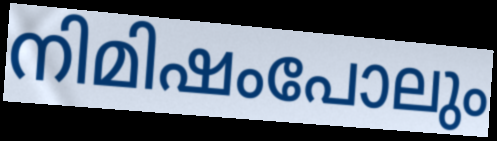
നിമിഷംപോലും